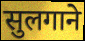
सुलगाने